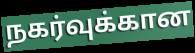
நகர்வுக்கான